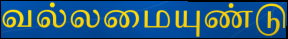
வல்லமையுண்டு